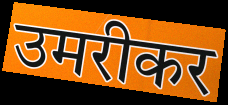
उमरीकर